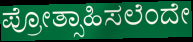
ಪ್ರೋತ್ಸಾಹಿಸಲೆಂದೇ